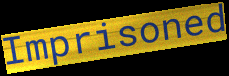
Imprisoned